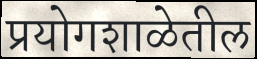
प्रयोगशाळेतील